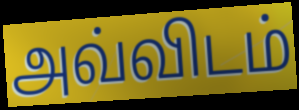
அவ்விடம்